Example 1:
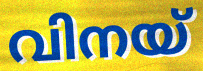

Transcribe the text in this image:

വിനയ്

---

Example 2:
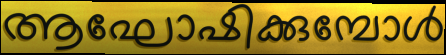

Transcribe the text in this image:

ആഘോഷിക്കുമ്പോൾ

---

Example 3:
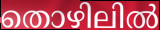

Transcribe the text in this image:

തൊഴിലിൽ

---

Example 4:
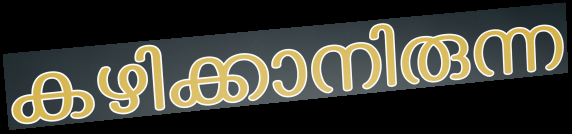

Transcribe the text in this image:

കഴിക്കാനിരുന്ന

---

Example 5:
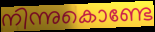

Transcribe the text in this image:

നിന്നുകൊണ്ടേ